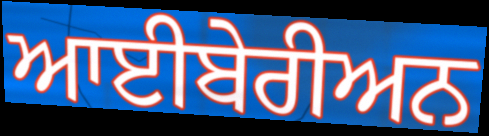
ਆਈਬੇਰੀਅਨ